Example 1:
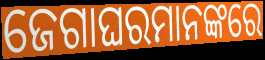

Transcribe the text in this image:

ଜେଗାଘରମାନଙ୍କରେ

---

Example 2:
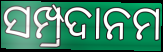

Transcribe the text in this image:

ସମ୍ପ୍ରଦାନମ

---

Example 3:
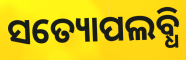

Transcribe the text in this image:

ସତ୍ୟୋପଲବ୍ଧି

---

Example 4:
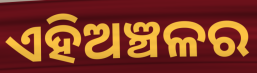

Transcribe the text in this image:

ଏହିଅଞ୍ଚଳର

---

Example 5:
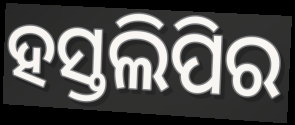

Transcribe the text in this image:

ହସ୍ତଲିପିର